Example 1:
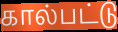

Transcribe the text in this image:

கால்பட்டு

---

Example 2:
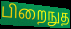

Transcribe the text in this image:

பிறைநுத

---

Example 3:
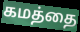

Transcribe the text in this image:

கமத்தை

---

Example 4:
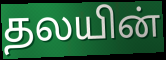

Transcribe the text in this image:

தலயின்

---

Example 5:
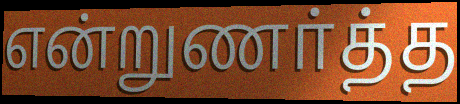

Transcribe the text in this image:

என்றுணர்த்த